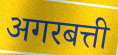
अगरबत्ती